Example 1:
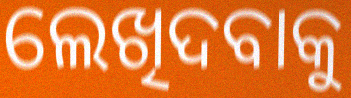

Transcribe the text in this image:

ଲେଖିଦବାକୁ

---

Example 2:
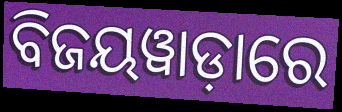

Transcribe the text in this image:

ବିଜୟୱାଡ଼ାରେ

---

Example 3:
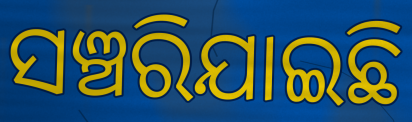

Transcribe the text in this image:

ସଞ୍ଚରିଯାଇଛି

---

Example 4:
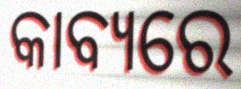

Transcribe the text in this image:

କାବ୍ଯରେ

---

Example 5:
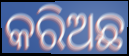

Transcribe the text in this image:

କରିଅଛ